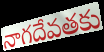
నాగదేవతకు